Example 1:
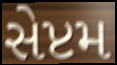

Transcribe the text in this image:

સેપ્ટમ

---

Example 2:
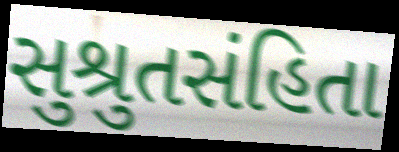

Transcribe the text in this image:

સુશ્રુતસંહિતા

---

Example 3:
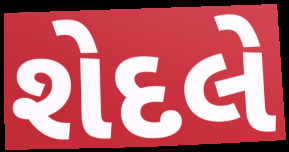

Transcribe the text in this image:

શેદલે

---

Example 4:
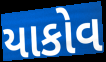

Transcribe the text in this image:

યાકોવ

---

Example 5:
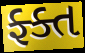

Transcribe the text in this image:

ફ્ક્ત